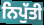
ਨਿਪੁੱਤੀ